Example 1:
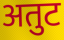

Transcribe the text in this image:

अतुट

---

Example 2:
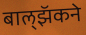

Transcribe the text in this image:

बाल्झॅकने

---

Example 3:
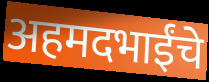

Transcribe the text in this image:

अहमदभाईंचे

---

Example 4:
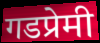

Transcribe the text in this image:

गडप्रेमी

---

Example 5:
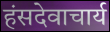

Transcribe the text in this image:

हंसदेवाचार्य